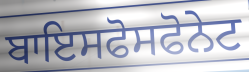
ਬਾਇਸਫੋਸਫੋਨੇਟ